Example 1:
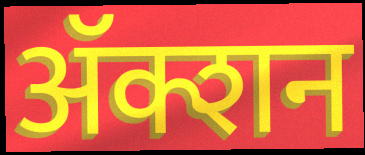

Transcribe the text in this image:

ॲक्शन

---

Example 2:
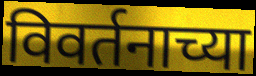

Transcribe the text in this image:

विवर्तनाच्या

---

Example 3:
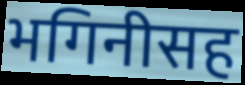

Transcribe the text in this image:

भगिनीसह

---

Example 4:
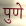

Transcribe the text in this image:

पुणे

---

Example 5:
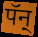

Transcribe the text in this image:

पॅन्